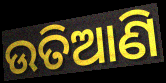
ଉତିଆଣି